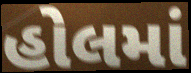
હોલમાં